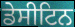
ਡੇਸੀਟਿਨ